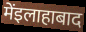
मेंइलाहाबाद